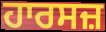
ਹਾਰਸਜ਼